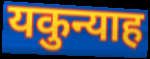
यकुन्याह